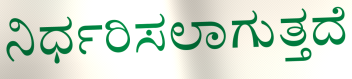
ನಿರ್ಧರಿಸಲಾಗುತ್ತದೆ